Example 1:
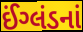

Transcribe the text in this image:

ઈંગ્લંડનાં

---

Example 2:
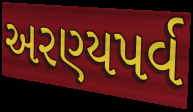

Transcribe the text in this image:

અરણ્યપર્વ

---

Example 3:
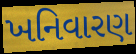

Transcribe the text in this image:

ખનિવારણ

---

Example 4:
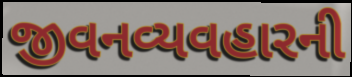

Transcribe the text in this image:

જીવનવ્યવહારની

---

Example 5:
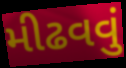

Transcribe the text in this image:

મીઢવવું